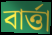
বার্ত্তা